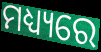
ମଧ୍ୟ୍ୟରେ